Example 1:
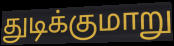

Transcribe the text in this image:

துடிக்குமாறு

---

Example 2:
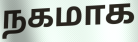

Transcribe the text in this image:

நகமாக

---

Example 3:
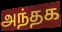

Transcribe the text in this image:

அந்தக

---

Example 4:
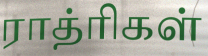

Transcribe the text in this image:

ராத்ரிகள்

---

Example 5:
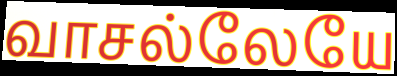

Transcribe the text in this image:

வாசல்லேயே